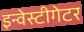
इन्वेस्टीगेटर